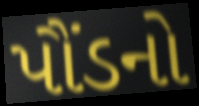
પૌંડનો